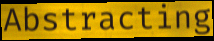
Abstracting